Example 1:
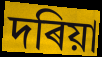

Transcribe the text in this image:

দৰিয়া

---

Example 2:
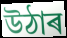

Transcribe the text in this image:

উঠাৰ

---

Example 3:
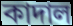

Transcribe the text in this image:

কাদাল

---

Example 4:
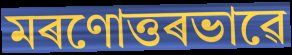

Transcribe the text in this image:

মৰণোত্তৰভাৱে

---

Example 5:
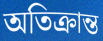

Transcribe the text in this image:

অতিক্ৰান্ত